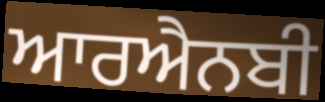
ਆਰਐਨਬੀ